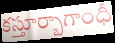
కస్తూర్బాగాంధీ